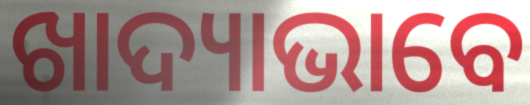
ଖାଦ୍ୟାଭାବେ